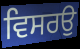
ਵਿਸਰਉ